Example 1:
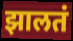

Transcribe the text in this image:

झालतं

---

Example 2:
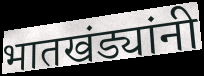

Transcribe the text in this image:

भातखंड्यांनी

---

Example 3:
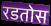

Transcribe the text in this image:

रडतोस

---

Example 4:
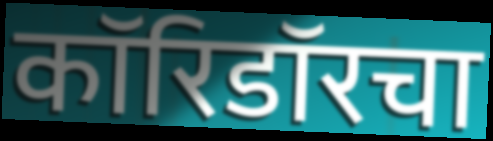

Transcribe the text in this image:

कॉरिडॉरचा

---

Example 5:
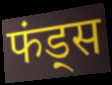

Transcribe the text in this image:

फंड्‌स